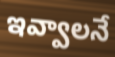
ఇవ్వాలనే